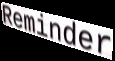
Reminder